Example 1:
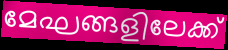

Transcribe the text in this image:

മേഘങ്ങളിലേക്ക്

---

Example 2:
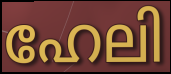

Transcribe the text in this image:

ഹേലി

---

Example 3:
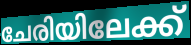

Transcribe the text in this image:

ചേരിയിലേക്ക്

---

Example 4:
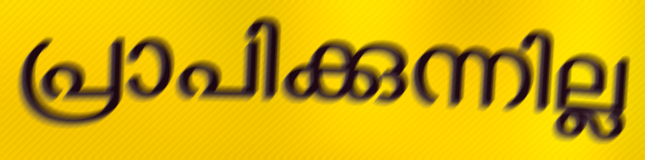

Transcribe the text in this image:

പ്രാപിക്കുന്നില്ല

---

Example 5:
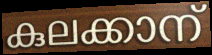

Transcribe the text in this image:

കുലക്കാന്